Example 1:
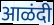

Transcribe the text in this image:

आळंदी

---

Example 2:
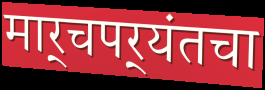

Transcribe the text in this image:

मार्चपर्यंतचा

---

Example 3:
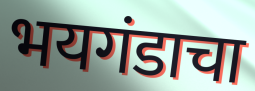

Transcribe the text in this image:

भयगंडाचा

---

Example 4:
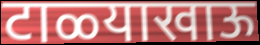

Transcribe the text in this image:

टाळ्याखाऊ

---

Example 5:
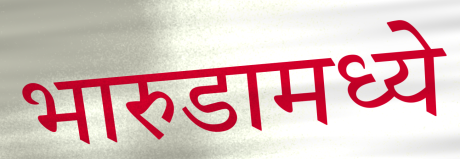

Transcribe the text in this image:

भारुडामध्ये